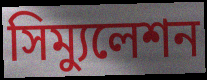
সিম্যুলেশন